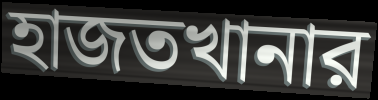
হাজতখানার